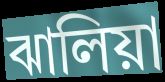
ঝালিয়া